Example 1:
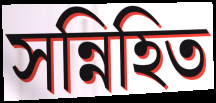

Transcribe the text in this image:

সন্নিহিত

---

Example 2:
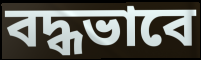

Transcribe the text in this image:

বদ্ধভাবে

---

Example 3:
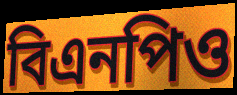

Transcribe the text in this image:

বিএনপিও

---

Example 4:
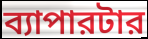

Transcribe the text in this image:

ব্যাপারটার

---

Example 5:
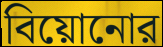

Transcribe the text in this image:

বিয়োনোর